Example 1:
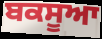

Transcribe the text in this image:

ਬਕਸੂਆ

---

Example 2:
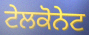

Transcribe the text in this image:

ਟੇਲਕੋਨੇਟ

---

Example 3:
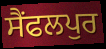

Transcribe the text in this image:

ਸੈਂਫਲਪੁਰ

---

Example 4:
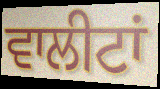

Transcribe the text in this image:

ਵਾਲੀਟਾਂ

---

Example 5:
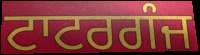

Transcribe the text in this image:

ਟਾਟਰਗੰਜ